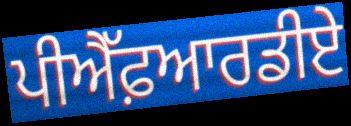
ਪੀਐੱਫ਼ਆਰਡੀਏ